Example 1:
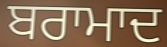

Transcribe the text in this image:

ਬਰਾਮਾਦ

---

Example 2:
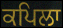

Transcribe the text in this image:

ਕਪਿਲਾ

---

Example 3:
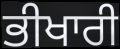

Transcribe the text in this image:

ਭੀਖਾਰੀ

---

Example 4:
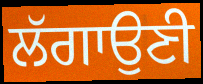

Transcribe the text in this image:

ਲੱਗਾਉਣੀ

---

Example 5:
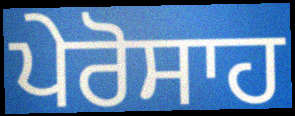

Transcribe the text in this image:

ਪੇਰੋਸਾਹ